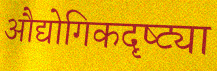
औद्योगिकदृष्ट्या